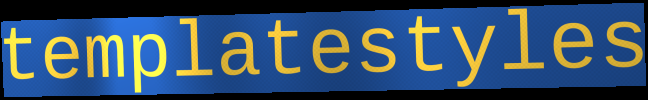
templatestyles